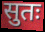
सुतः